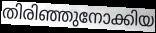
തിരിഞ്ഞുനോക്കിയ